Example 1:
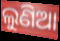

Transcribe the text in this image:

ଲୁଣିଆ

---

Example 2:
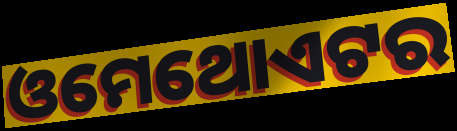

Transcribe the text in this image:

ଓମେଥୋଏଟର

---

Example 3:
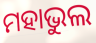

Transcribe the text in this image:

ମହାଭୁଲ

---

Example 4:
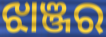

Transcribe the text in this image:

ଝାଞ୍ଜର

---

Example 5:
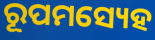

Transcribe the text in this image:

ରୂପମସ୍ୟେହ